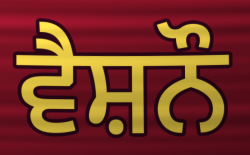
ਵੈਸ਼ਨੌ